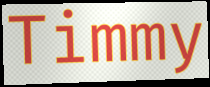
Timmy